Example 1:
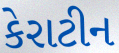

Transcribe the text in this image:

કેરાટીન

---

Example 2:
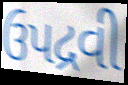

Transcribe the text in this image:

ઉપદ્રવી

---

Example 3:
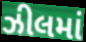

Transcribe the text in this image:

ઝીલમાં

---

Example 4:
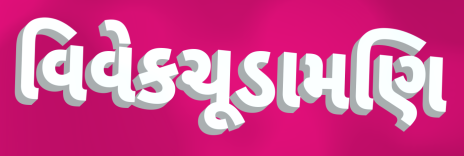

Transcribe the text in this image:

વિવેકચૂડામણિ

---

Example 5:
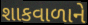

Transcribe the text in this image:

શાકવાળાને